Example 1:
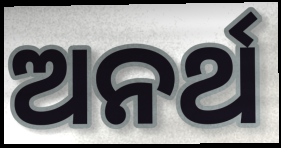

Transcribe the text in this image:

ଅନର୍ଥ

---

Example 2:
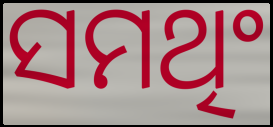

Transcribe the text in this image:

ସମଥିଂ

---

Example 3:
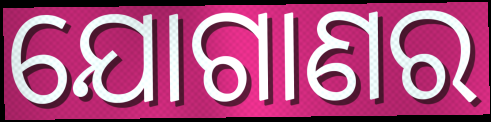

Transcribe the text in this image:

ଯୋଗାଣର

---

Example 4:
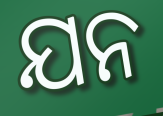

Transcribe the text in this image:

ଯନ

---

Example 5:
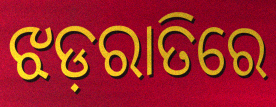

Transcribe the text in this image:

ଝଡ଼ରାତିରେ